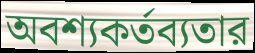
অবশ্যকর্তব্যতার